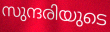
സുന്ദരിയുടെ